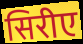
सिरीए